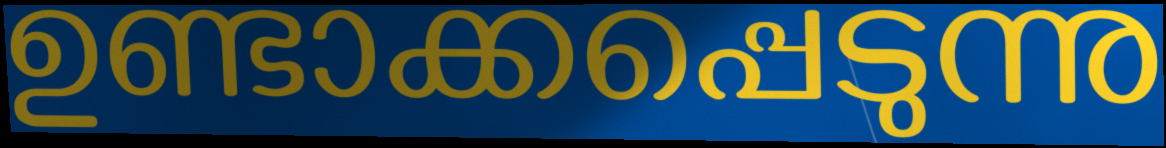
ഉണ്ടാക്കപ്പെടുന്നു